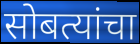
सोबत्यांचा